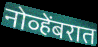
नोव्हेंबरात